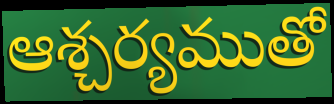
ఆశ్చర్యముతో